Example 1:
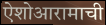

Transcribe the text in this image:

ऐशोआरामाची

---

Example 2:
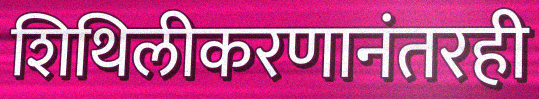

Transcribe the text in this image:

शिथिलीकरणानंतरही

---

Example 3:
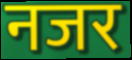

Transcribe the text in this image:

नजर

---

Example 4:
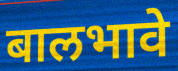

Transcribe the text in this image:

बालभावे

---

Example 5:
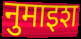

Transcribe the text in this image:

नुमाइश